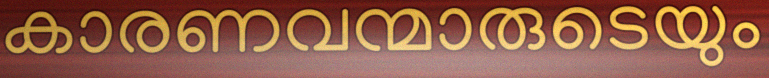
കാരണവന്മാരുടെയും